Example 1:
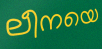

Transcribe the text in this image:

ലീനയെ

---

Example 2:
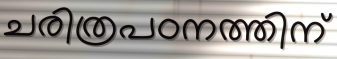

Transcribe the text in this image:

ചരിത്രപഠനത്തിന്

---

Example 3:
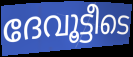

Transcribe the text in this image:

ദേവൂട്ടീടെ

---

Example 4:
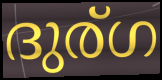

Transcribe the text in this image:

ദുര്ഗ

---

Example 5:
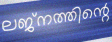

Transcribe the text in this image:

ലജ്നത്തിന്റെ